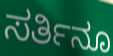
ಸರ್ತಿನೂ